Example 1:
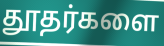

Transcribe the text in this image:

தூதர்களை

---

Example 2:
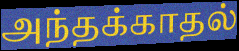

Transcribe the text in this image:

அந்தக்காதல்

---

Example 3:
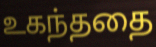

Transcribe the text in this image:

உகந்ததை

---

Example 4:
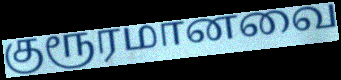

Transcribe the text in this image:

குரூரமானவை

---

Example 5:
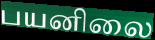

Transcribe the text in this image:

பயனிலை